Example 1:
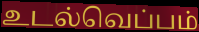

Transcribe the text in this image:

உடல்வெப்பம்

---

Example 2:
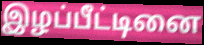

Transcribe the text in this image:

இழப்பீட்டினை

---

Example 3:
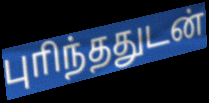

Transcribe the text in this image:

புரிந்ததுடன்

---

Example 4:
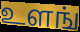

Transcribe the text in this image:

உளங்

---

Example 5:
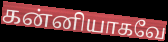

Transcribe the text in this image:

கன்னியாகவே